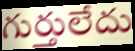
గుర్తులేదు